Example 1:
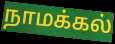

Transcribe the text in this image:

நாமக்கல்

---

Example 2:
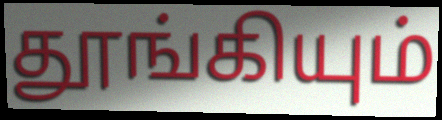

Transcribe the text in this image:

தூங்கியும்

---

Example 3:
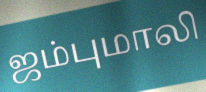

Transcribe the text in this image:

ஜம்புமாலி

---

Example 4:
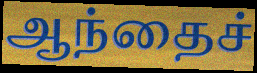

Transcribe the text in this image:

ஆந்தைச்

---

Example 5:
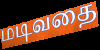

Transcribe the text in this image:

மடிவதை